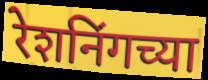
रेशनिंगच्या